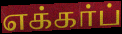
எக்கர்ப்